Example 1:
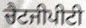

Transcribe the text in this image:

ਚੈਟਜੀਪੀਟੀ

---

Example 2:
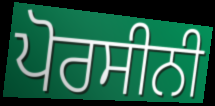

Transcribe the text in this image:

ਪੋਰਸੀਨੀ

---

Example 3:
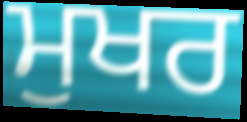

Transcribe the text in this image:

ਮੁਖਰ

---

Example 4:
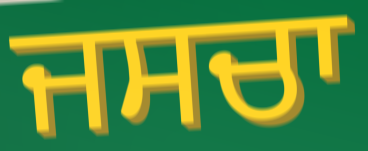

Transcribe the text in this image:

ਜਸਚਾ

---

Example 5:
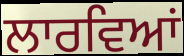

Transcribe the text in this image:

ਲਾਰਵਿਆਂ